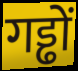
गड्ढों